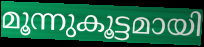
മൂന്നുകൂട്ടമായി